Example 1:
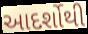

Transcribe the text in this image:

આદર્શોથી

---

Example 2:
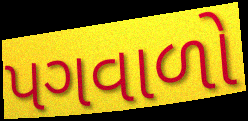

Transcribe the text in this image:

પગવાળો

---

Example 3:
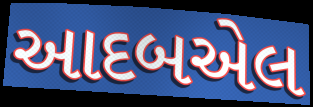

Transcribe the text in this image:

આદબએલ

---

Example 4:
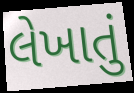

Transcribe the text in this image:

લેખાતું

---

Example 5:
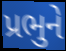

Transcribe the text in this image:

પ્રભુને